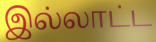
இல்லாட்ட